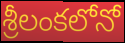
శ్రీలంకలోనో